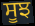
ਸੂਝ